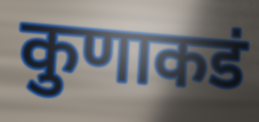
कुणाकडं